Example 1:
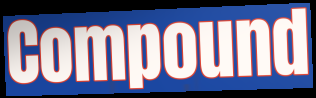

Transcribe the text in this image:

Compound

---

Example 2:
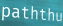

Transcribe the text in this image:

paththu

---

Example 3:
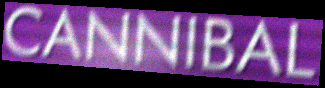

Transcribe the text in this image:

CANNIBAL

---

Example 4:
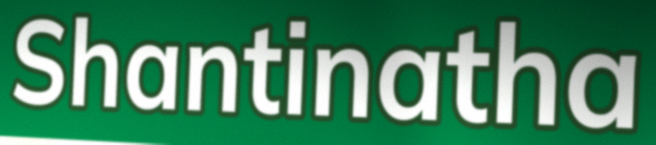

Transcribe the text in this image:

Shantinatha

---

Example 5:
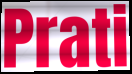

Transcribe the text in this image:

Prati